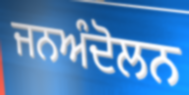
ਜਨਅੰਦੋਲਨ